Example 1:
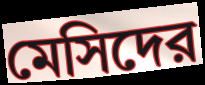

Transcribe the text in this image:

মেসিদের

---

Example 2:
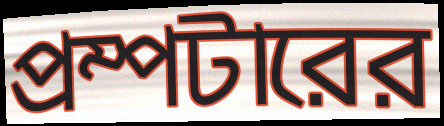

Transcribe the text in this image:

প্রম্পটারের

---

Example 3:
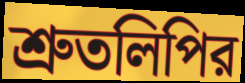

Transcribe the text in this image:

শ্রুতলিপির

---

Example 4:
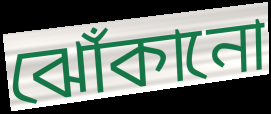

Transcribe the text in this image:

ঝোঁকানো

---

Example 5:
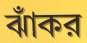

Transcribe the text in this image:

ঝাঁকর